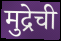
मुद्रेची